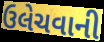
ઉલેચવાની